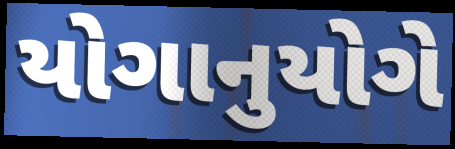
યોગાનુયોગે